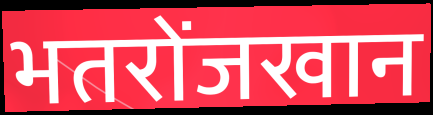
भतरोंजखान